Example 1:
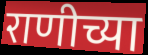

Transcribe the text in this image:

राणीच्या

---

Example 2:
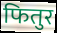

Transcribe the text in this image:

फितुर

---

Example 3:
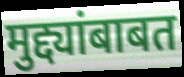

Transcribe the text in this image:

मुद्द्यांबाबत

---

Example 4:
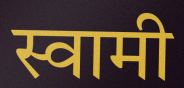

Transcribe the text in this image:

स्वामी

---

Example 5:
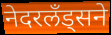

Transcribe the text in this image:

नेदरलँड्सने